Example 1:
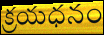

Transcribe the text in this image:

క్రయధనం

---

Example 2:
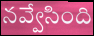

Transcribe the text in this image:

నవ్వేసింది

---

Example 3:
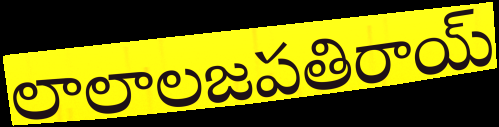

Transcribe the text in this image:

లాలాలజపతిరాయ్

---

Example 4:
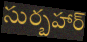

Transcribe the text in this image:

సుర్బహార్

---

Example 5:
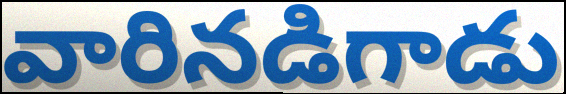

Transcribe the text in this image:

వారినడిగాడు